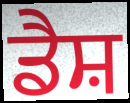
ਡੈਸ਼